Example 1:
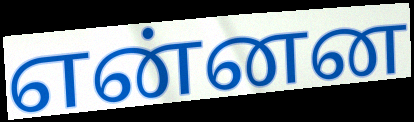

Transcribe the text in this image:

என்னன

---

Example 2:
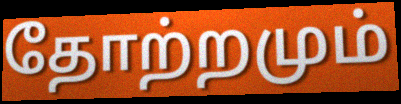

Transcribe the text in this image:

தோற்றமும்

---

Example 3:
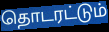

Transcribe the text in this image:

தொடரட்டும்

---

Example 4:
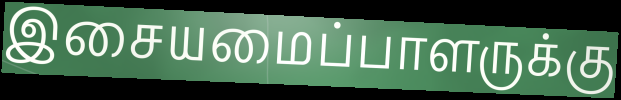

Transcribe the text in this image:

இசையமைப்பாளருக்கு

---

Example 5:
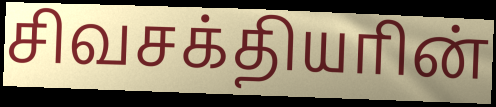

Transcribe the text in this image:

சிவசக்தியரின்